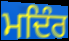
ਮਦਿੰਰ